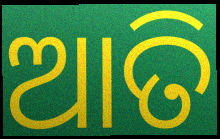
ଆତି